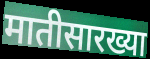
मातीसारख्या